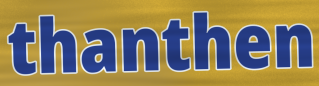
thanthen